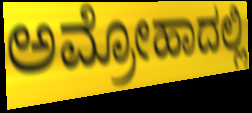
ಅಮ್ರೋಹಾದಲ್ಲಿ